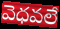
వెధవలే